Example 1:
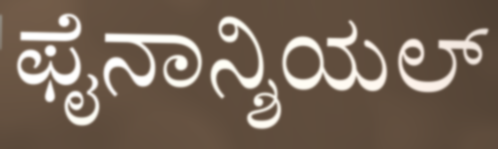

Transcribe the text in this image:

ಫೈನಾನ್ಶಿಯಲ್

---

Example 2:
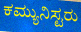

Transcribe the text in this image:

ಕಮ್ಯುನಿಸ್ಟರು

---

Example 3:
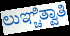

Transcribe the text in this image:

ಲುಞ್ಚಿತ್ವಾತಿ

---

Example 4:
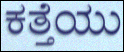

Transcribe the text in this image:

ಕತ್ತೆಯು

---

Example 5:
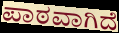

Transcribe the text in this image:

ಪಾಠವಾಗಿದೆ